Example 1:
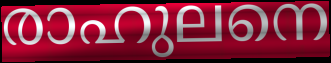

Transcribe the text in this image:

രാഹുലനെ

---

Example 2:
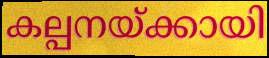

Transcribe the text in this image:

കല്പനയ്ക്കായി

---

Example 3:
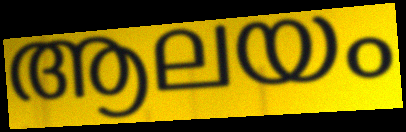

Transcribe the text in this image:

ആലയം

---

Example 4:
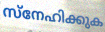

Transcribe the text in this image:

സ്നേഹിക്കുക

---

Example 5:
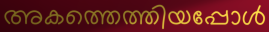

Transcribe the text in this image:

അകത്തെത്തിയപ്പോൾ